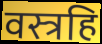
वस्त्रहि